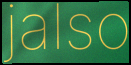
jalso